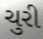
ચુરી